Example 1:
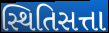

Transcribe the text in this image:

સ્થિતિસત્તા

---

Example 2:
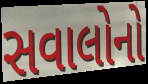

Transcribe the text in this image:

સવાલોનો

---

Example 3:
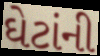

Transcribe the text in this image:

ઘેટાંની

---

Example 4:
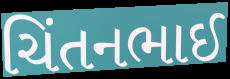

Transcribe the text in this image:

ચિંતનભાઈ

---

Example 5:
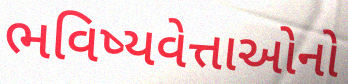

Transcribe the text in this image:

ભવિષ્યવેત્તાઓનો